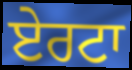
ਏਰਟਾ